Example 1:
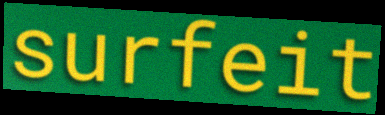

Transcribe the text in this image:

surfeit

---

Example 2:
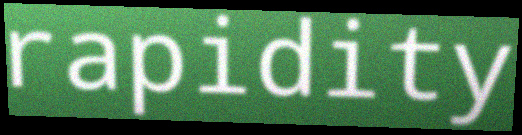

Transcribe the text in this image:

rapidity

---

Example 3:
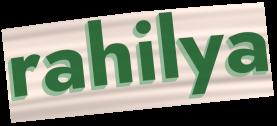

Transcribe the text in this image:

rahilya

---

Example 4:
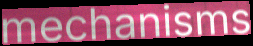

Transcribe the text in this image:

mechanisms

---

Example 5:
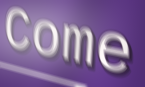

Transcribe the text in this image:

Come